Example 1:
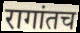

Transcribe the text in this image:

रागांतच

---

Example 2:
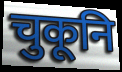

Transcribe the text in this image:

चुकूनि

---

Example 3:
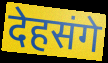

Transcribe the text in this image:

देहसंगे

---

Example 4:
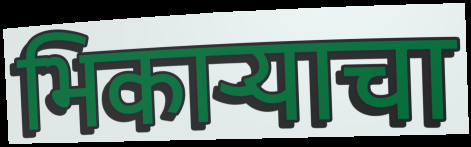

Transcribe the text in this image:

भिकाऱ्याचा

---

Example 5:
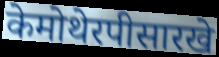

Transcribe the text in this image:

केमोथेरपीसारखे